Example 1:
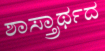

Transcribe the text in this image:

ಶಾಸ್ತ್ರಾರ್ಥದ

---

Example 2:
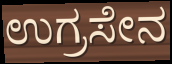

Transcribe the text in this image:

ಉಗ್ರಸೇನ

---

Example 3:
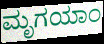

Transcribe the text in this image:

ಮೃಗಯಾಂ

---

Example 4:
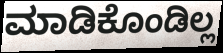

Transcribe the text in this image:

ಮಾಡಿಕೊಂಡಿಲ್ಲ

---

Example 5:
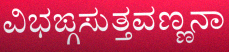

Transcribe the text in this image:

ವಿಭಙ್ಗಸುತ್ತವಣ್ಣನಾ